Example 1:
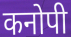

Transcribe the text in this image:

कनोपी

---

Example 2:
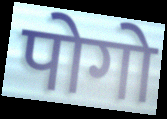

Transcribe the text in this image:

पोगो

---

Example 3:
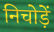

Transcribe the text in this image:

निचोड़ें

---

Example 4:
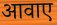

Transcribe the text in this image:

आवाए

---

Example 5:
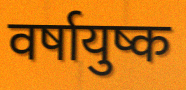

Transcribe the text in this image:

वर्षायुष्क